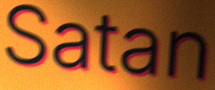
Satan